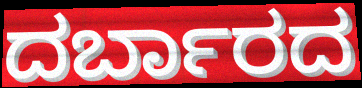
ದರ್ಬಾರದ